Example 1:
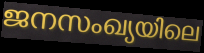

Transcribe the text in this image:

ജനസംഖ്യയിലെ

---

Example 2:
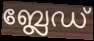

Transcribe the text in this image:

ബ്ലേഡ്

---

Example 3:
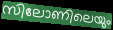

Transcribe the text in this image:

സിലോണിലെയും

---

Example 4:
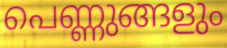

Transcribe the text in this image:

പെണ്ണുങ്ങളും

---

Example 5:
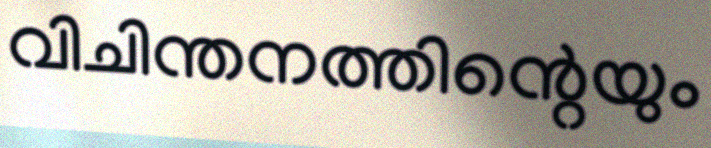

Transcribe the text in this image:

വിചിന്തനത്തിന്റെയും